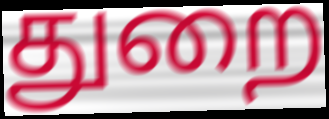
துறை